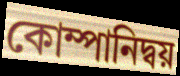
কোম্পানিদ্বয়